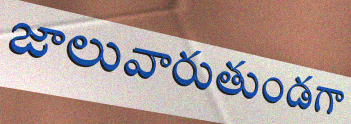
జాలువారుతుండగా